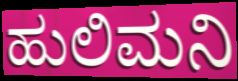
ಹುಲಿಮನಿ